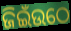
ଜିଇଁଉଠେ